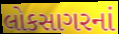
લોકસાગરનાં